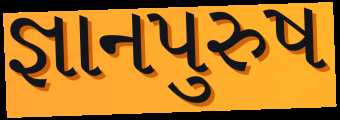
જ્ઞાનપુરુષ